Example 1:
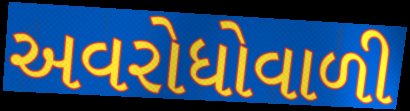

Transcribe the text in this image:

અવરોધોવાળી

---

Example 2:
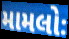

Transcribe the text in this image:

મામલોઃ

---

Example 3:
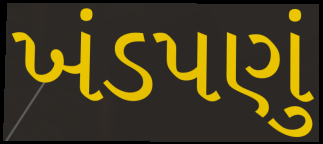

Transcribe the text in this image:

ખંડપણું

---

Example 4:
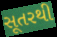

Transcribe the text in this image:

સૂતરથી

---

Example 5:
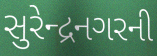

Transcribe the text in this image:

સુરેન્દ્રનગરની